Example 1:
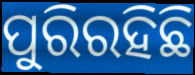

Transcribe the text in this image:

ପୁରିରହିଛି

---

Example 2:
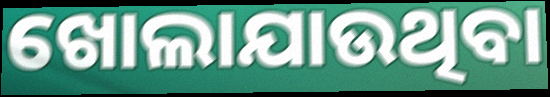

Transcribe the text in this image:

ଖୋଲାଯାଉଥିବା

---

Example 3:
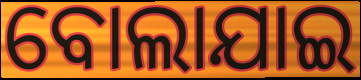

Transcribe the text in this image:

ବୋଲାଯାଇ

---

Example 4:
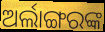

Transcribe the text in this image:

ଅର୍ଲାଙ୍ଗରଙ୍କ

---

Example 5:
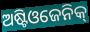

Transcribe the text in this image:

ଅଷ୍ଟିଓଜେନିକ୍